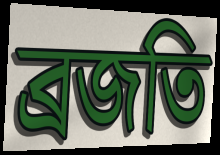
ব্রজতি